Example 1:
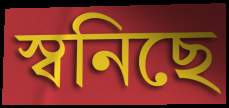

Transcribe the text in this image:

স্বনিছে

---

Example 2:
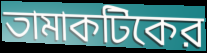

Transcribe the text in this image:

তামাকটিকের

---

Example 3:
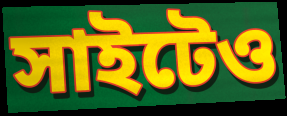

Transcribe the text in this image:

সাইটেও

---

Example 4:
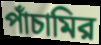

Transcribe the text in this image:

পাঁচামির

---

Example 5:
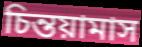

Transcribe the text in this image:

চিন্তয়ামাস